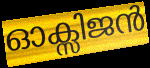
ഓക്സിജൻ